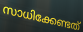
സാധിക്കേണ്ടത്